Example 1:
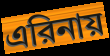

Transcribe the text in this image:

এরিনায়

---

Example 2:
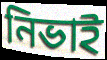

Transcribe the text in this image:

নিভাই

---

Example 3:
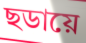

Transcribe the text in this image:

ছডায়ে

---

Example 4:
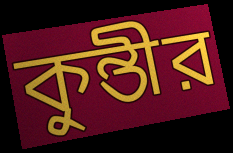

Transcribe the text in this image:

কুন্তীর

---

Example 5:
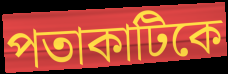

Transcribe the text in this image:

পতাকাটিকে